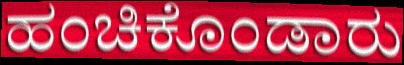
ಹಂಚಿಕೊಂಡಾರು